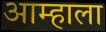
आम्हाला